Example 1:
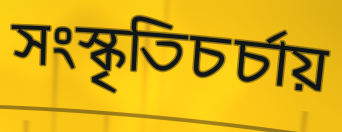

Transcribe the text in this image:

সংস্কৃতিচর্চায়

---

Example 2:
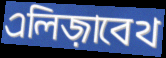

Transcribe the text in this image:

এলিজ়াবেথ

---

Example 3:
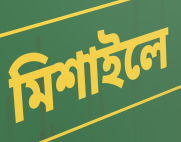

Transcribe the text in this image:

মিশাইলে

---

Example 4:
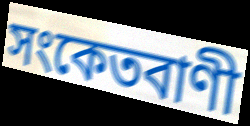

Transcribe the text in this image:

সংকেতবাণী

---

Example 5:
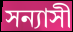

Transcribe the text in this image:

সন্যাসী